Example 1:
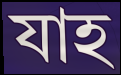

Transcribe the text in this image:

যাহ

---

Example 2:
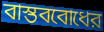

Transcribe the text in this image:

বাস্তববোধের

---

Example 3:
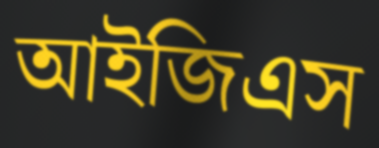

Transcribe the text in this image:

আইজিএস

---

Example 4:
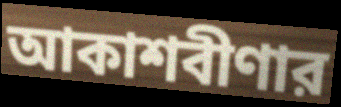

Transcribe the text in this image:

আকাশবীণার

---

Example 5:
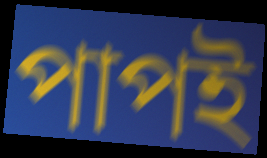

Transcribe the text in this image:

পাপই